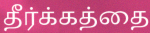
தீர்க்கத்தை